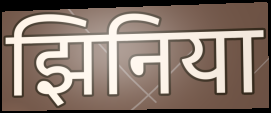
झिनिया